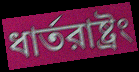
ধার্তরাষ্ট্রং